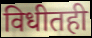
विधीतही